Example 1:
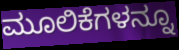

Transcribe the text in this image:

ಮೂಲಿಕೆಗಳನ್ನೂ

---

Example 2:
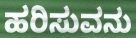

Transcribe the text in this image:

ಹರಿಸುವನು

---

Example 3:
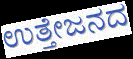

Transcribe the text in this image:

ಉತ್ತೇಜನದ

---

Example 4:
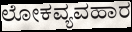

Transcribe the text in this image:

ಲೋಕವ್ಯವಹಾರ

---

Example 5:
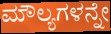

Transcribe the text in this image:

ಮೌಲ್ಯಗಳನ್ನೇ